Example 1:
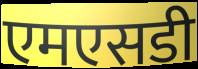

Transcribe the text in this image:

एमएसडी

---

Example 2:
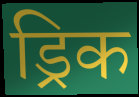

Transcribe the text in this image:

ड्रिक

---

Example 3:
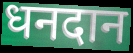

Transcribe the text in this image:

धनदान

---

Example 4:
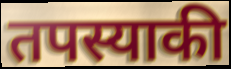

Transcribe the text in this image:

तपस्याकी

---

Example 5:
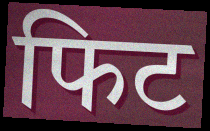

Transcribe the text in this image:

फिट